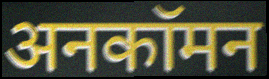
अनकॉमन